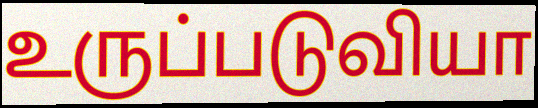
உருப்படுவியா